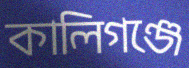
কালিগঞ্জে